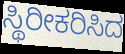
ಸ್ಥಿರೀಕರಿಸಿದ